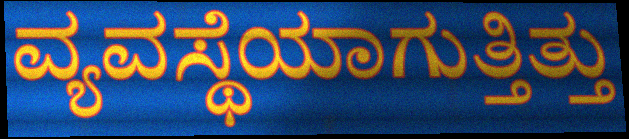
ವ್ಯವಸ್ಥೆಯಾಗುತ್ತಿತ್ತು